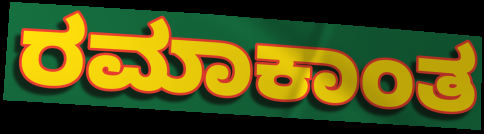
ರಮಾಕಾಂತ